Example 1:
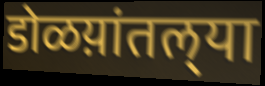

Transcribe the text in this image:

डोळय़ांतल्या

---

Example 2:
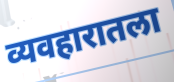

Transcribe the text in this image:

व्यवहारातला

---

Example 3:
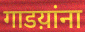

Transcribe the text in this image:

गाडय़ांना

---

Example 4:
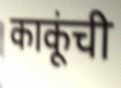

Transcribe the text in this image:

काकूंची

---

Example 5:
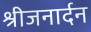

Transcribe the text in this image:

श्रीजनार्दन